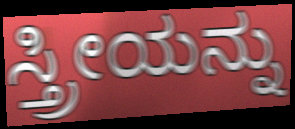
ಸ್ತ್ರೀಯನ್ನು